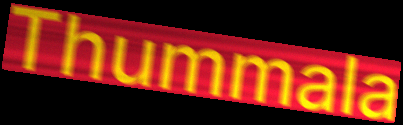
Thummala